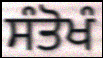
ਸੰਤੋਖੰ